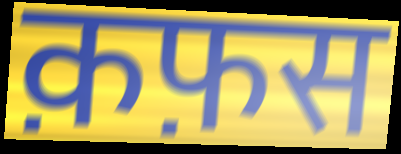
क़फ़स